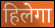
हिलेगा